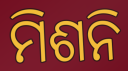
ମିଶନି